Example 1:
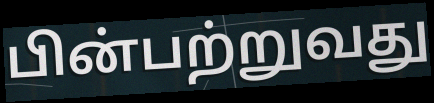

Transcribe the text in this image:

பின்பற்றுவது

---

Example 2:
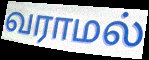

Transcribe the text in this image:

வராமல்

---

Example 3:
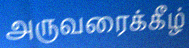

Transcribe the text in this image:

அருவரைக்கீழ்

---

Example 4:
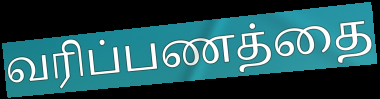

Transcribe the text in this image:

வரிப்பணத்தை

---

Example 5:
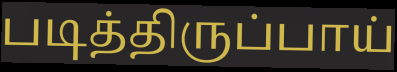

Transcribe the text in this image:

படித்திருப்பாய்